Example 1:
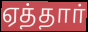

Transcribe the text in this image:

ஏத்தார்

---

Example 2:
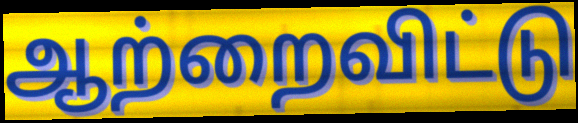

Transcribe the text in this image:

ஆற்றைவிட்டு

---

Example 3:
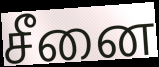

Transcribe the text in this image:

சீனை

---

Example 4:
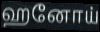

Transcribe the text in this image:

ஹனோய்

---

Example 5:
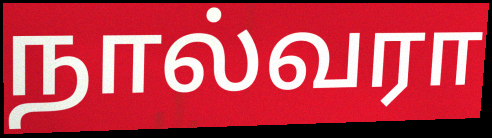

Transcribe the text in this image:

நால்வரா